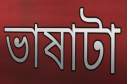
ভাষাটা